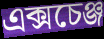
এক্সচেঞ্জ